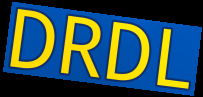
DRDL